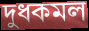
দুধকমল